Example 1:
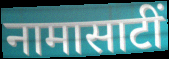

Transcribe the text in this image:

नामासाटीं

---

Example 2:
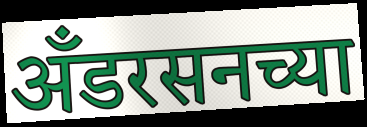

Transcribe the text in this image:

अँडरसनच्या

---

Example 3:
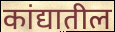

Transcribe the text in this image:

कांद्यातील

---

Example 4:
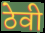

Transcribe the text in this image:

ठेवी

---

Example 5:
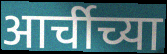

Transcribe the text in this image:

आर्चीच्या